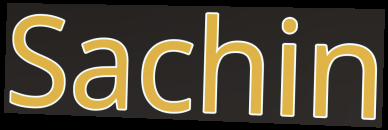
Sachin